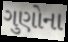
ગુણોના